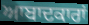
ਆਬਾਦਕਾਰਾਂ